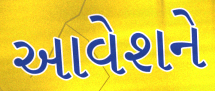
આવેશને